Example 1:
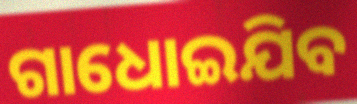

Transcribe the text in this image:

ଗାଧୋଇଯିବ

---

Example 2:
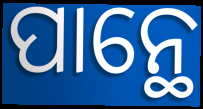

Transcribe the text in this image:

ପାନ୍ଥେ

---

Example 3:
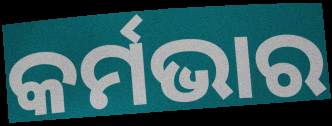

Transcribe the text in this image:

କର୍ମଭାର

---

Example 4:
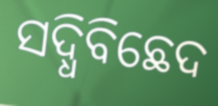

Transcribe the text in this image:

ସଦ୍ଧିବିଛେଦ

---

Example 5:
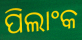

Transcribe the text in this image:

ପିଲାଂକ